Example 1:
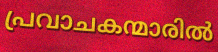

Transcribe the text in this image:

പ്രവാചകന്മാരിൽ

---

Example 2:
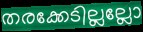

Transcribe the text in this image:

തരക്കേടില്ലല്ലോ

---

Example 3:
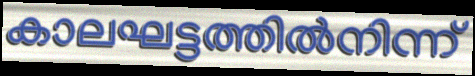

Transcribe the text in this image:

കാലഘട്ടത്തിൽനിന്ന്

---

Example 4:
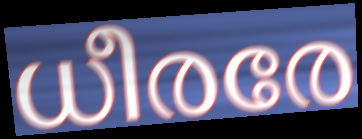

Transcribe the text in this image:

ധീരരേ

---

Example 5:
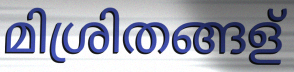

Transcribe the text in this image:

മിശ്രിതങ്ങള്